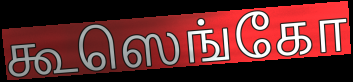
கூஸெங்கோ